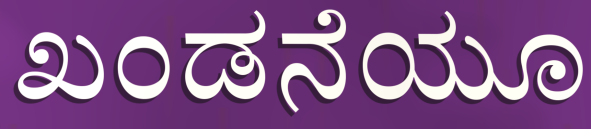
ಖಂಡನೆಯೂ